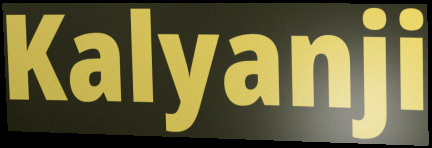
Kalyanji